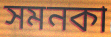
সমনকা